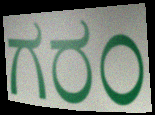
ಗರಂ